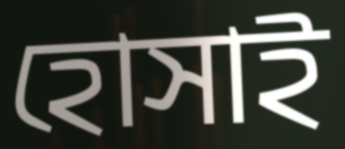
হোসাই